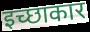
इच्छाकार